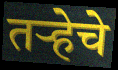
तर्‍हेचे